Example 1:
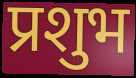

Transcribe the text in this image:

प्रशुभ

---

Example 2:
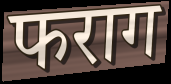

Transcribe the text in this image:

फराग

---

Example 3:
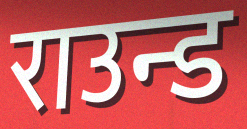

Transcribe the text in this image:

राउन्ड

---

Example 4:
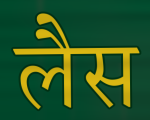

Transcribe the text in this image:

लैस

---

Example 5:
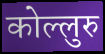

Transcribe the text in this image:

कोल्लुरु